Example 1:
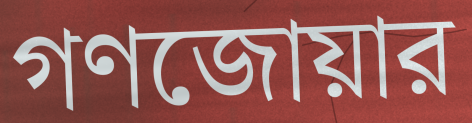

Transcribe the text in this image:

গণজোয়ার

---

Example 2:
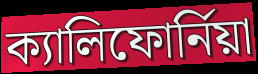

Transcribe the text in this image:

ক্যালিফোর্নিয়া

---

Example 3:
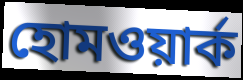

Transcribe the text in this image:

হোমওয়ার্ক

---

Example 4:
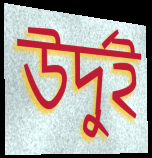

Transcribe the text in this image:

উর্দুই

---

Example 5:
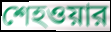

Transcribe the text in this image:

শেহওয়ার